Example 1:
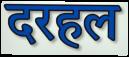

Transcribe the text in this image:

दरहल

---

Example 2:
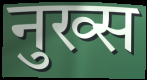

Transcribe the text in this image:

नुख्स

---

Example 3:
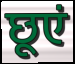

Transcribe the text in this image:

छूएं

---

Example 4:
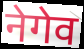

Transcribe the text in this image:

नेगेव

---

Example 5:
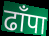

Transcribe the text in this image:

ढाँपा